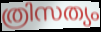
ത്രിസത്യം